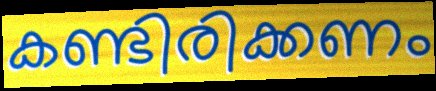
കണ്ടിരിക്കണം